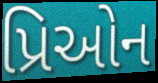
પ્રિઓન